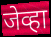
जेव्हा